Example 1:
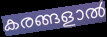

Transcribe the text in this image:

കരങ്ങളാൽ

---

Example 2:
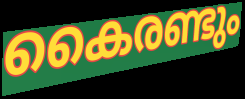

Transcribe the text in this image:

കൈരണ്ടും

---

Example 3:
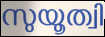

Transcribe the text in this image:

സുയൂത്വി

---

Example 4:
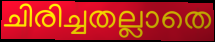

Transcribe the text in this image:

ചിരിച്ചതല്ലാതെ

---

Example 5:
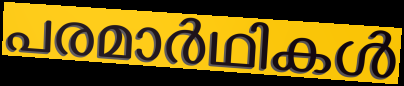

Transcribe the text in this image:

പരമാർഥികൾ